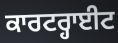
ਕਾਰਟਰ੍ਹਾਈਟ